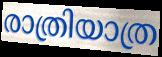
രാത്രിയാത്ര